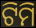
ଟିମି